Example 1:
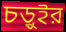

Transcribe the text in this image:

চড়ুইর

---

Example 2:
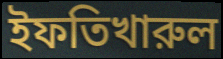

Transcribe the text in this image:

ইফতিখারুল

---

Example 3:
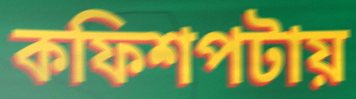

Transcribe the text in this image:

কফিশপটায়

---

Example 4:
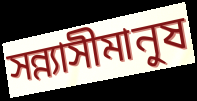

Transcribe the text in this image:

সন্ন্যাসীমানুষ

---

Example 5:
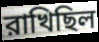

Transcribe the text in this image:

রাখিছিল